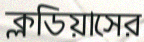
ক্লডিয়াসের